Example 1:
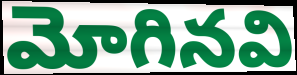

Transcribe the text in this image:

మోగినవి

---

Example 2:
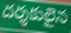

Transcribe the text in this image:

దర్శకులైన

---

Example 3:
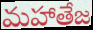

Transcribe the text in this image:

మహాతేజ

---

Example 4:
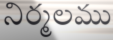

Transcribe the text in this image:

నిర్మలము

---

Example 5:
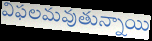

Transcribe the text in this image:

విఫలమవుతున్నాయి